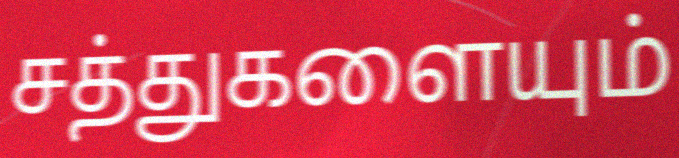
சத்துகளையும்